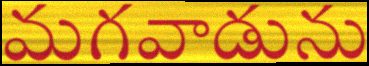
మగవాడును